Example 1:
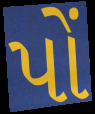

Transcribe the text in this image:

પોં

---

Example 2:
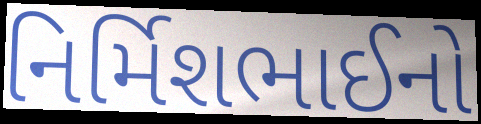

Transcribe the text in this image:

નિર્મિશભાઈનો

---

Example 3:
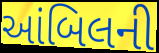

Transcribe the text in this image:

આંબિલની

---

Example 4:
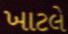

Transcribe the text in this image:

ખાટલે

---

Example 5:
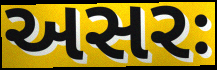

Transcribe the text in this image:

અસરઃ